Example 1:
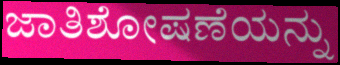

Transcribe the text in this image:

ಜಾತಿಶೋಷಣೆಯನ್ನು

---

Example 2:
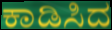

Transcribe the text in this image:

ಕಾಡಿಸಿದ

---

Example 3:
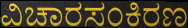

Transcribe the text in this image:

ವಿಚಾರಸಂಕಿರಣ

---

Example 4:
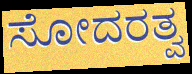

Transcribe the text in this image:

ಸೋದರತ್ವ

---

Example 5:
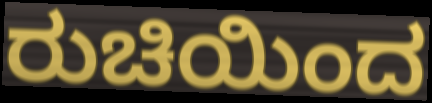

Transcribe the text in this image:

ರುಚಿಯಿಂದ